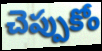
చెప్పుకోం